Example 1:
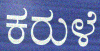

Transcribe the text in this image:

ಕರುಳೆ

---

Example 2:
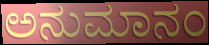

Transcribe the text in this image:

ಅನುಮಾನಂ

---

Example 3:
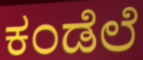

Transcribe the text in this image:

ಕಂಡೆಲೆ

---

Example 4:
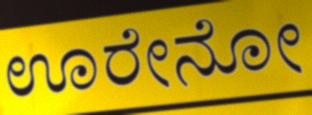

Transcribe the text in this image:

ಊರೇನೋ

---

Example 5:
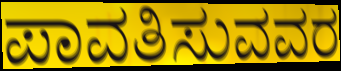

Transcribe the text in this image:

ಪಾವತಿಸುವವರ